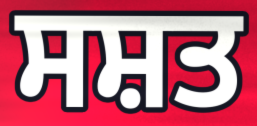
ਸਸ਼ਤ